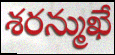
శరన్ముఖే